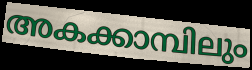
അകക്കാമ്പിലും